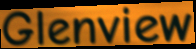
Glenview